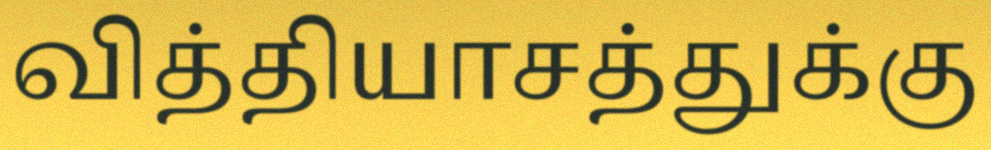
வித்தியாசத்துக்கு